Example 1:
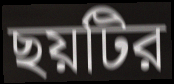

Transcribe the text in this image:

ছয়টির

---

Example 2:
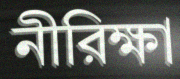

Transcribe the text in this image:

নীরিক্ষা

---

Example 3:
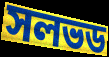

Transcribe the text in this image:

সলভড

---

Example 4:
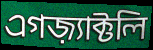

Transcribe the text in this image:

এগজ়্যাক্টলি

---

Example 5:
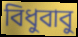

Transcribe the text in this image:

বিধুবাবু